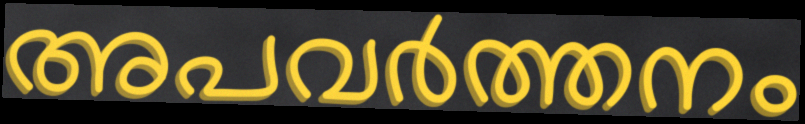
അപവർത്തനം